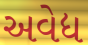
અવેદ્ય